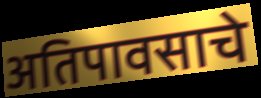
अतिपावसाचे